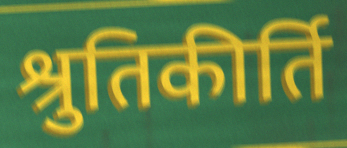
श्रुतिकीर्ति